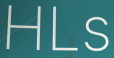
HLs